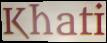
Khati